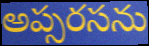
అప్సరసను